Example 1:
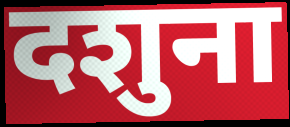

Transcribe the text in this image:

दशुना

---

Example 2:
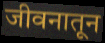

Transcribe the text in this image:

जीवनातून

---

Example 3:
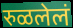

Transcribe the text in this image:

रुळलेलं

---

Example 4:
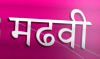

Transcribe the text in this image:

मढवी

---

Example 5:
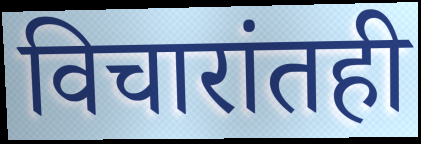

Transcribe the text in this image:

विचारांतही